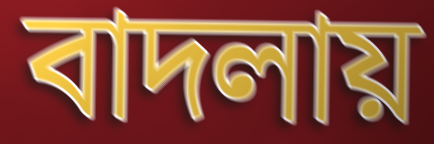
বাদলায়